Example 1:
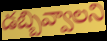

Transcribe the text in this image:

డబ్బివ్వాలని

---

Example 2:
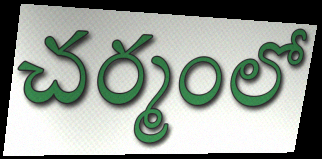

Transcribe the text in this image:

చర్మంలో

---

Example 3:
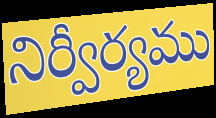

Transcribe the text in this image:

నిర్వీర్యము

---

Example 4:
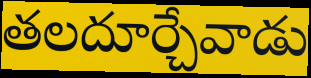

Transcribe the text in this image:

తలదూర్చేవాడు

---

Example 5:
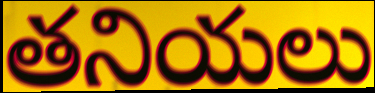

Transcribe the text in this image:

తనియలు